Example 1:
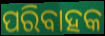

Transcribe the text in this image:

ପରିବାହକ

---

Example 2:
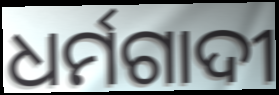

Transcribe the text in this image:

ଧର୍ମଗାଦୀ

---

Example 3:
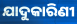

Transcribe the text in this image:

ଯାଦୁକାରିଣୀ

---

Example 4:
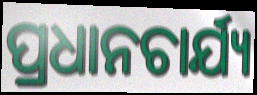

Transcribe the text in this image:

ପ୍ରଧାନଚାର୍ଯ୍ୟ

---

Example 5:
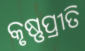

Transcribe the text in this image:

କୃଷ୍ଣପ୍ରୀତି